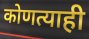
कोणत्याही